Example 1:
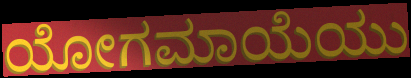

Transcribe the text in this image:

ಯೋಗಮಾಯೆಯು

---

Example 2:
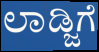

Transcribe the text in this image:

ಲಾಡ್ಜಿಗೆ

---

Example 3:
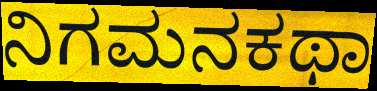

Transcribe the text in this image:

ನಿಗಮನಕಥಾ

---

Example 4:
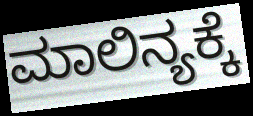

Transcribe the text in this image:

ಮಾಲಿನ್ಯಕ್ಕೆ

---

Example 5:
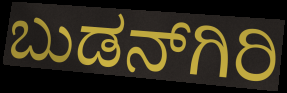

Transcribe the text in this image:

ಬುಡನ್‍ಗಿರಿ